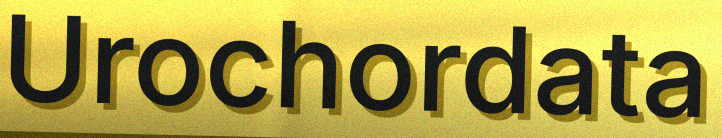
Urochordata